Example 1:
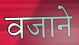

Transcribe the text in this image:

वजाने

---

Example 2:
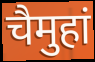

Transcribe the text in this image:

चैमुहां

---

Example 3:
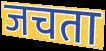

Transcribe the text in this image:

जचता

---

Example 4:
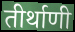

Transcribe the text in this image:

तीर्थाणी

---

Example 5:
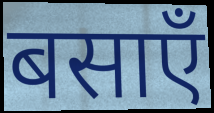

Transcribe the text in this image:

बसाएँ